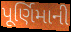
પૂર્ણિમાની